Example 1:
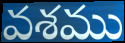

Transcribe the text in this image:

వశము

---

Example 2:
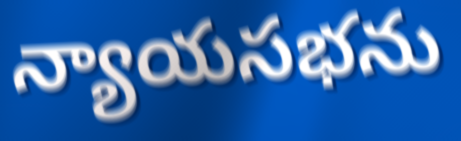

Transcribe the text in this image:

న్యాయసభను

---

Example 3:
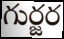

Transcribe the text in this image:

గుర్జర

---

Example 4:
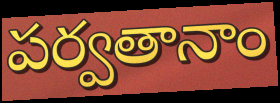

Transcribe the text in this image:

పర్వతానాం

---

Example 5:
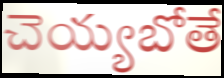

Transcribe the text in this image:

చెయ్యబోతే